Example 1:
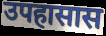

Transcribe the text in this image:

उपहासास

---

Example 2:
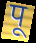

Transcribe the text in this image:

पू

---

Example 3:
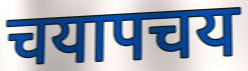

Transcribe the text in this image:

चयापचय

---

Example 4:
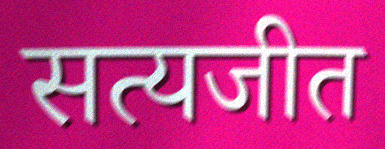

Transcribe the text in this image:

सत्यजीत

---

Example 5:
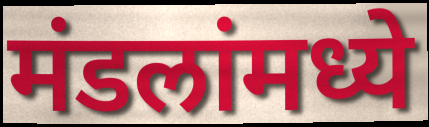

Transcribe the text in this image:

मंडलांमध्ये